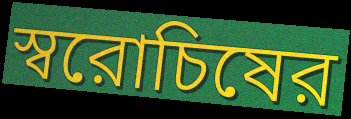
স্বরোচিষের